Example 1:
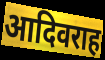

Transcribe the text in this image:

आदिवराह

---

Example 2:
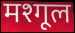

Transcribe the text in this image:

मश्गूल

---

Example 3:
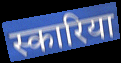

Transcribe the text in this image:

स्कारिया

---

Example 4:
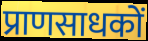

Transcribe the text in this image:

प्राणसाधकों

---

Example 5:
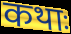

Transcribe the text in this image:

कथाः